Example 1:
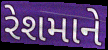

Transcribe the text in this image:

રેશમાને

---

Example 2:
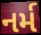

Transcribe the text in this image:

નર્મ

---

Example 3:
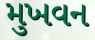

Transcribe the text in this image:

મુખવન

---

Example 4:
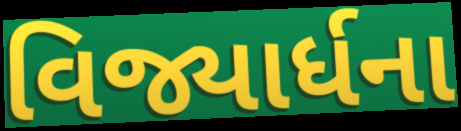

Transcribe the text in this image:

વિજ્યાર્ધના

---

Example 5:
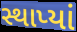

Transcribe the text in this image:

સ્થાપ્યાં